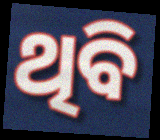
ଥିବି